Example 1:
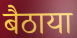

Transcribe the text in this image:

बैठाया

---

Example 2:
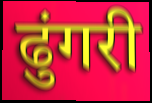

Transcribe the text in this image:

ढुंगरी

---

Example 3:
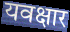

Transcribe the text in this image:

यवक्षार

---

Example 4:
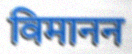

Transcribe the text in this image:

विमानन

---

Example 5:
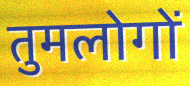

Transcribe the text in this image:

तुमलोगों